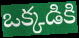
ఒక్కడికి